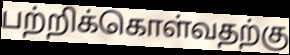
பற்றிக்கொள்வதற்கு